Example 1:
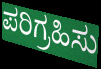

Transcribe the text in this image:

ಪರಿಗ್ರಹಿಸು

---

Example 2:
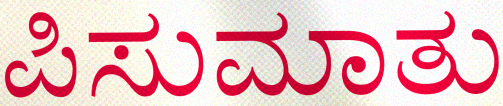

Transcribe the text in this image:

ಪಿಸುಮಾತು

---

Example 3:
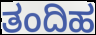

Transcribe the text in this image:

ತಂದಿಹ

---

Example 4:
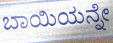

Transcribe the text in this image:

ಬಾಯಿಯನ್ನೇ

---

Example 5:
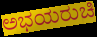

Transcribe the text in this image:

ಅಭಯರುಚಿ